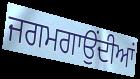
ਜਗਮਗਾਉਂਦੀਆਂ